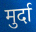
मुर्दा